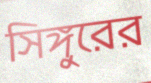
সিঙ্গুরের